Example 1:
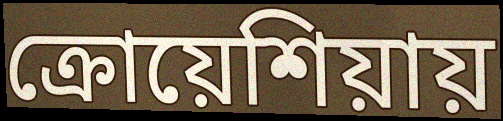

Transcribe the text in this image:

ক্রোয়েশিয়ায়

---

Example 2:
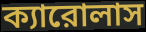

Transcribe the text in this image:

ক্যারোলাস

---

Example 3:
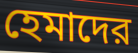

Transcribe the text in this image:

হেমাদের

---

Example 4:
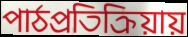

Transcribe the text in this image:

পাঠপ্রতিক্রিয়ায়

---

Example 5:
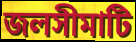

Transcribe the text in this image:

জলসীমাটি